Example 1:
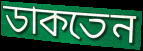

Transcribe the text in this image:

ডাকতেন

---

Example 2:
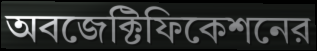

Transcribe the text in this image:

অবজেক্টিফিকেশনের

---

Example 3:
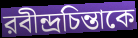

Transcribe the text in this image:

রবীন্দ্রচিন্তাকে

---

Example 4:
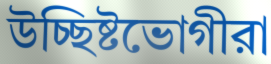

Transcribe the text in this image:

উচ্ছিষ্টভোগীরা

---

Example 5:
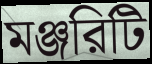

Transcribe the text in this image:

মঞ্জরিটি